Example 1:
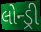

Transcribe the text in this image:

લોન્ડ્રી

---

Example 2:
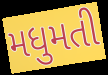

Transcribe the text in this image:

મધુમતી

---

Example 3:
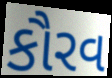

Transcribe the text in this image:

કૌરવ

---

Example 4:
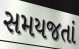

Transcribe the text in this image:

સમયજતાં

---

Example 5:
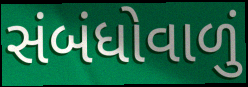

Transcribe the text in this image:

સંબંધોવાળું